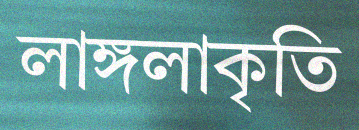
লাঙ্গলাকৃতি